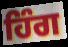
ਹਿੰਗ